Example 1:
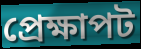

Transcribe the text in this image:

প্রেক্ষাপট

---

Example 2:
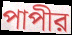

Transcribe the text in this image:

পাপীর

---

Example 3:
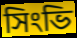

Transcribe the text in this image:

সিংভি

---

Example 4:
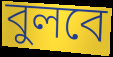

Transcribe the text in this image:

বুলবে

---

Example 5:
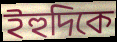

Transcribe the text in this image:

ইহুদিকে